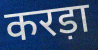
करड़ा